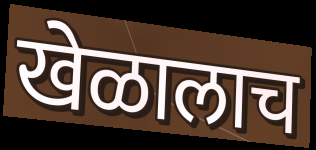
खेळालाच